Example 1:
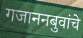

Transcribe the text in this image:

गजाननबुवांचे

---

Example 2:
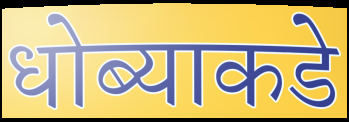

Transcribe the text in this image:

धोब्याकडे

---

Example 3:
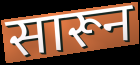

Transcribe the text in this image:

सारून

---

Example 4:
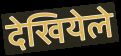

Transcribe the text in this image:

देखियेले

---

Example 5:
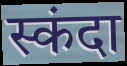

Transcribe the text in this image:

स्कंदा